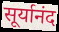
सूर्यानंद